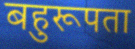
बहुरूपता